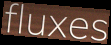
fluxes